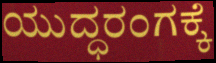
ಯುದ್ಧರಂಗಕ್ಕೆ